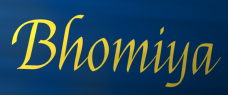
Bhomiya